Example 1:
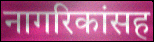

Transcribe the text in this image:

नागरिकांसह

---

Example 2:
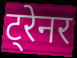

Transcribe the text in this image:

ट्रेनर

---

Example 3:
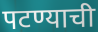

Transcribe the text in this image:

पटण्याची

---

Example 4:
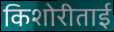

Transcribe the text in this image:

किशोरीताई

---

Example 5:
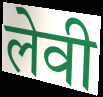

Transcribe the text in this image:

लेवी